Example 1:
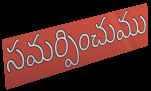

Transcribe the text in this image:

సమర్పించుము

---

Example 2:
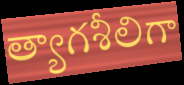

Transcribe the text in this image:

త్యాగశీలిగా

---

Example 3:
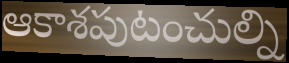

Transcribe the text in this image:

ఆకాశపుటంచుల్ని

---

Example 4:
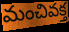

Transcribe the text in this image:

మంచివక్త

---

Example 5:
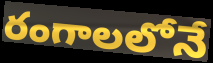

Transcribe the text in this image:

రంగాలలోనే